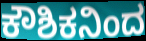
ಕೌಶಿಕನಿಂದ